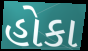
હોકા